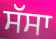
ਸੱਸਾ